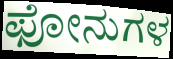
ಫೋನುಗಳ